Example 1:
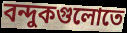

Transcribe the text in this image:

বন্দুকগুলোতে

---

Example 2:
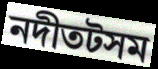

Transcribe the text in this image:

নদীতটসম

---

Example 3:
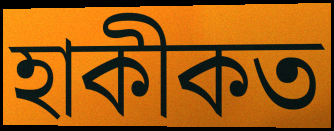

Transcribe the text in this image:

হাকীকত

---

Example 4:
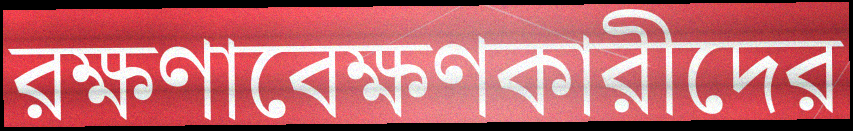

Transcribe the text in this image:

রক্ষণাবেক্ষণকারীদের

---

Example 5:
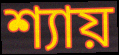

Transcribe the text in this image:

শ্যায়